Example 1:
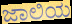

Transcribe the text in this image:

ಜಾಲಿಯ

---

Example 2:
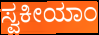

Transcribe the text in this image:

ಸ್ವಕೀಯಾಂ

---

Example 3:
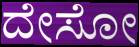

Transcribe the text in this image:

ದೇಸೋ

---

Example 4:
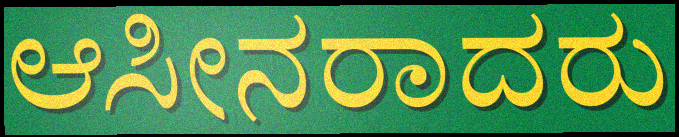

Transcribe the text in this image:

ಆಸೀನರಾದರು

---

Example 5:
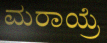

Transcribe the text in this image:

ಮರಾಯ್ರೆ